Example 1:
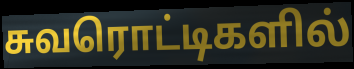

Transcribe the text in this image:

சுவரொட்டிகளில்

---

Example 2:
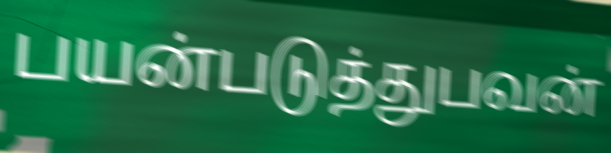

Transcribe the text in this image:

பயன்படுத்துபவன்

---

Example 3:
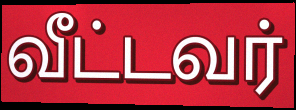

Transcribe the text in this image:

வீட்டவர்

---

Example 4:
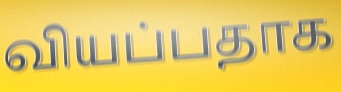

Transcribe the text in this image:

வியப்பதாக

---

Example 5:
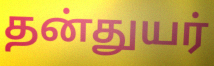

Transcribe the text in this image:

தன்துயர்